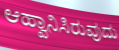
ಆಹ್ವಾನಿಸಿರುವುದು